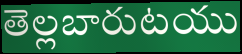
తెల్లబారుటయు